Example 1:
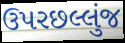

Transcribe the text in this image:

ઉપરછલ્લુંજ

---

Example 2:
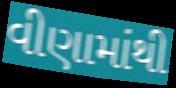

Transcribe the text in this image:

વીણામાંથી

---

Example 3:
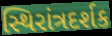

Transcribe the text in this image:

સ્થિરાંત્રદર્શક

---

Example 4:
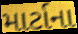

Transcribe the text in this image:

માર્ટાના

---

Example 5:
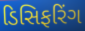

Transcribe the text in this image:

ડિસિફરિંગ